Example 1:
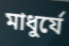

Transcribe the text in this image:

মাধুর্যে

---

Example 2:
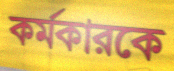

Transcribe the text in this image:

কর্মকারকে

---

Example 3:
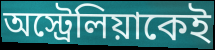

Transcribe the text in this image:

অস্ট্রেলিয়াকেই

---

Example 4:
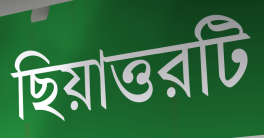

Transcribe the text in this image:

ছিয়াত্তরটি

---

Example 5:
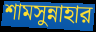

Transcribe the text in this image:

শামসুন্নাহার